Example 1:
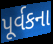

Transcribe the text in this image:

પૂર્વકના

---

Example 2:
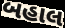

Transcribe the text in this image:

બહાલ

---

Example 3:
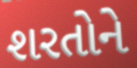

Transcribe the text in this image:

શરતોને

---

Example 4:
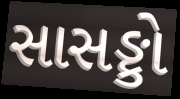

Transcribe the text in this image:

સાસઙ્કો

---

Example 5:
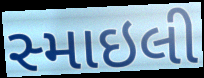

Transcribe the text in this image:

સ્માઇલી